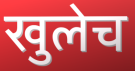
खुलेच